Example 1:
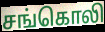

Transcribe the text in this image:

சங்கொலி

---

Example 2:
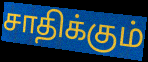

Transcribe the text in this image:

சாதிக்கும்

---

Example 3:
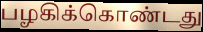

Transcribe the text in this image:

பழகிக்கொண்டது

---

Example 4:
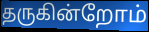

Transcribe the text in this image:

தருகின்றோம்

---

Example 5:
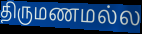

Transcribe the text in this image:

திருமணமல்ல